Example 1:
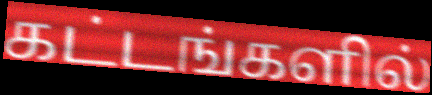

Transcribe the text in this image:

கட்டங்களில்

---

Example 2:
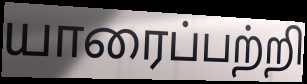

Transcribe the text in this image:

யாரைப்பற்றி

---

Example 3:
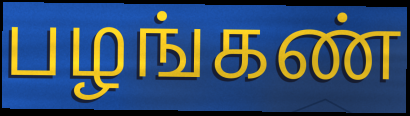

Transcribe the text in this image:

பழங்கண்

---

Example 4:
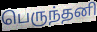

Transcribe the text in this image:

பெருந்தனி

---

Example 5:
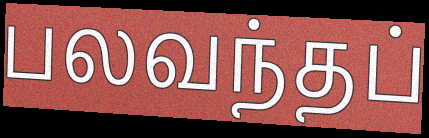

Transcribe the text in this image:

பலவந்தப்